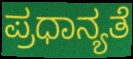
ಪ್ರಧಾನ್ಯತೆ